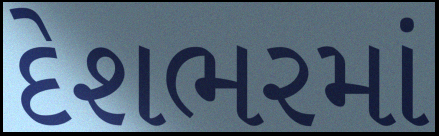
દેશભરમાં